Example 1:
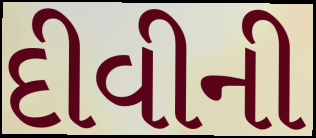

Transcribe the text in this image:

દીવીની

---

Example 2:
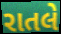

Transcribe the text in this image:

રાતલે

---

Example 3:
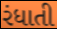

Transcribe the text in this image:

રંધાતી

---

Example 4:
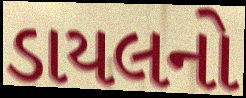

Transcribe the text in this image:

ડાયલનો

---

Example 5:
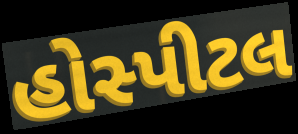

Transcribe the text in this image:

હોસ્પીટલ